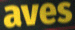
aves